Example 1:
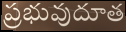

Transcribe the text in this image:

ప్రభువుదూత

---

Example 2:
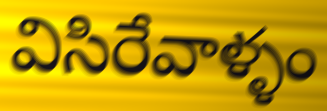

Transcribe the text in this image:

విసిరేవాళ్ళం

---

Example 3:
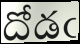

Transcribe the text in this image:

దోడఁ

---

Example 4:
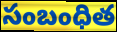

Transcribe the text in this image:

సంబంధిత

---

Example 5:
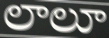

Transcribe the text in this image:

లాలూ